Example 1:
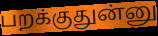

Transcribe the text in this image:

பறக்குதுன்னு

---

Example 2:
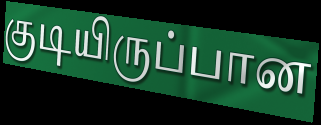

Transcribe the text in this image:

குடியிருப்பான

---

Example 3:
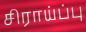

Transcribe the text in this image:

சிராய்ப்பு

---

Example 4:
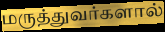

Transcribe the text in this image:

மருத்துவர்களால்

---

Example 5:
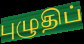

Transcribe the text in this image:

புழுதிப்